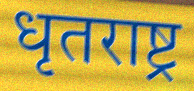
धृतराष्ट्र